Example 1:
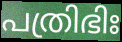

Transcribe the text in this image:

പത്രിഭിഃ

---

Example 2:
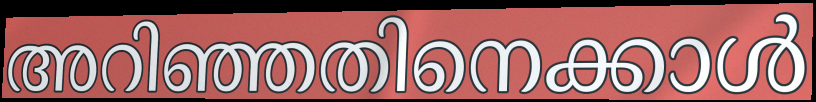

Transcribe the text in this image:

അറിഞ്ഞതിനെക്കാൾ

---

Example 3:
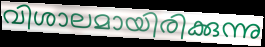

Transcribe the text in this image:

വിശാലമായിരിക്കുന്നു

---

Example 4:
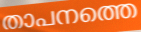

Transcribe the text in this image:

താപനത്തെ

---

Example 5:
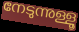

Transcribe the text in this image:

നേടുന്നുള്ളൂ